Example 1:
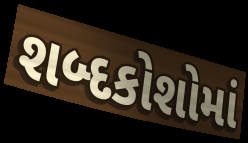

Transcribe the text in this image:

શબ્દકોશોમાં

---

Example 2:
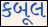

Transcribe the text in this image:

કબૂલ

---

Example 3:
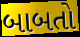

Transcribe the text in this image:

બાબતો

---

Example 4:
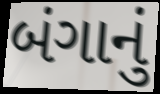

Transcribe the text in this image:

બંગાનું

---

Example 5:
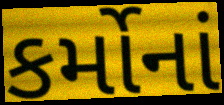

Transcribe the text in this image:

કર્મોનાં